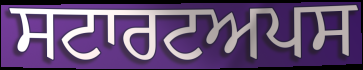
ਸਟਾਰਟਅਪਸ